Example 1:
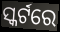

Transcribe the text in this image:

ସ୍କର୍ଟରେ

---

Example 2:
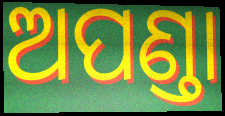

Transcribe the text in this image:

ଅପଣ୍ଡା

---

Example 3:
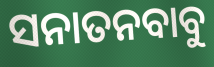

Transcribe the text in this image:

ସନାତନବାବୁ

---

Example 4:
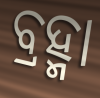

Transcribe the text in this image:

ବ୍ରହ୍ମା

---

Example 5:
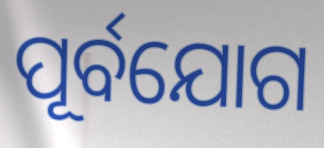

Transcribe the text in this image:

ପୂର୍ବଯୋଗ